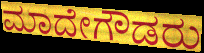
ಮಾದೇಗೌಡರು